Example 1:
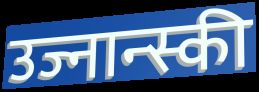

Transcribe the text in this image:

उज्नान्स्की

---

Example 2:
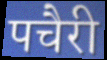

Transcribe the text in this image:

पचैरी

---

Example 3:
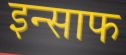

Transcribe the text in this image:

इन्साफ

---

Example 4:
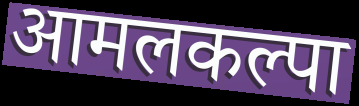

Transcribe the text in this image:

आमलकल्पा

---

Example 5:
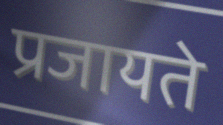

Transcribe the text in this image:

प्रजायते